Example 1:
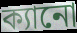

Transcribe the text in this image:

ক্যানো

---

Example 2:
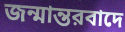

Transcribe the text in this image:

জন্মান্তরবাদে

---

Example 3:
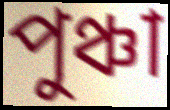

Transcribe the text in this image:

পুঞ্চা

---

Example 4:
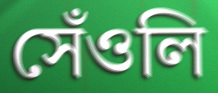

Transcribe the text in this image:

সেঁওলি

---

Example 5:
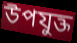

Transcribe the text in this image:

উপযুক্ত